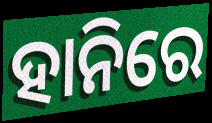
ହାନିରେ